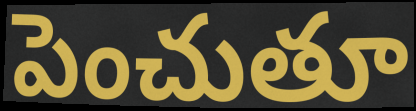
పెంచుతూ